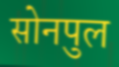
सोनपुल